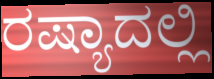
ರಷ್ಯಾದಲ್ಲಿ